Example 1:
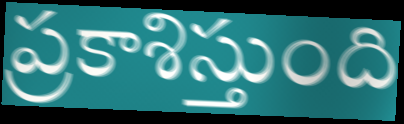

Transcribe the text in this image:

ప్రకాశిస్తుంది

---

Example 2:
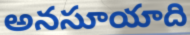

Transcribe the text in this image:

అనసూయాది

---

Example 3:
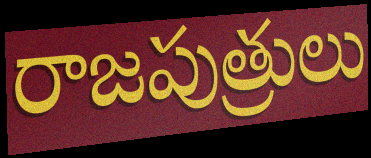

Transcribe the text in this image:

రాజపుత్రులు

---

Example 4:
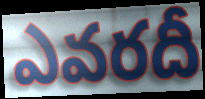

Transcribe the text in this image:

ఎవరదీ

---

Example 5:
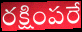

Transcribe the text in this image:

రక్షింపరే